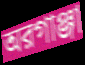
অরগাঞ্জা